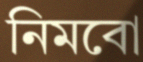
নিমবো